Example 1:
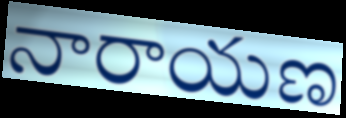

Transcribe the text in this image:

నారాయణ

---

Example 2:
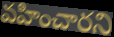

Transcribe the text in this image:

వహించారని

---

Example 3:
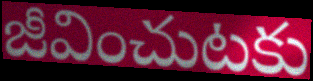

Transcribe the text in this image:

జీవించుటకు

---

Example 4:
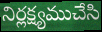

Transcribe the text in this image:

నిర్లక్ష్యముచేసి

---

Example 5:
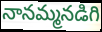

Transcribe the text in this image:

నానమ్మనడిగి